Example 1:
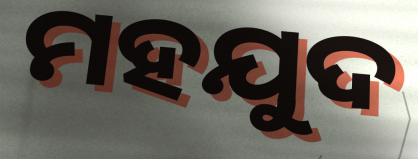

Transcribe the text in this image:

ମହଯୁଦ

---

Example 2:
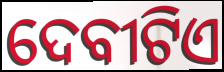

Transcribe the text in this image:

ଦେବୀଟିଏ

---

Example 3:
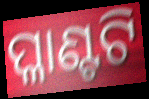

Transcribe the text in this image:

ପ୍ଳାଣ୍ଟଟି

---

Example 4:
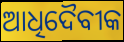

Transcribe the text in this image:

ଆଧିଦୈବୀକ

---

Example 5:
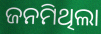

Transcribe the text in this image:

ଜନମିଥିଲା